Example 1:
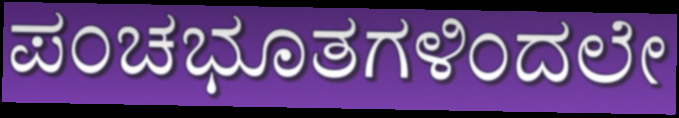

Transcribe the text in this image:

ಪಂಚಭೂತಗಳಿಂದಲೇ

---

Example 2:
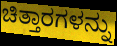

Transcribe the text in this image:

ಚಿತ್ತಾರಗಳನ್ನು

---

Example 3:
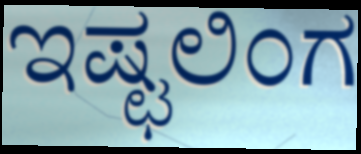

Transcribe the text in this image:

ಇಷ್ಟಲಿಂಗ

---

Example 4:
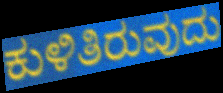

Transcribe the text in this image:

ಕುಳಿತಿರುವುದು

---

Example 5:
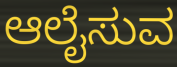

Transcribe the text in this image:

ಆಲೈಸುವ